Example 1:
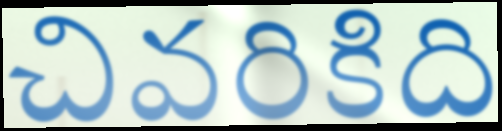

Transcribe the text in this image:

చివరికిది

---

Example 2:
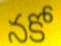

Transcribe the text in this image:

నకో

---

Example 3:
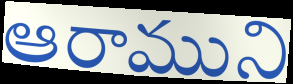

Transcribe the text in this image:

ఆరాముని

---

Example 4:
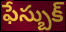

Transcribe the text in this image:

ఫేస్బుక్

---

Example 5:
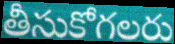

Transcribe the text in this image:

తీసుకోగలరు